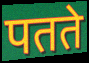
पतते